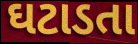
ઘટાડતા